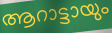
ആറാട്ടായും